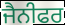
ਜੈਨੀਫਰ